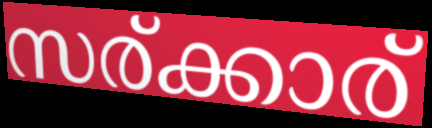
സര്ക്കാര്